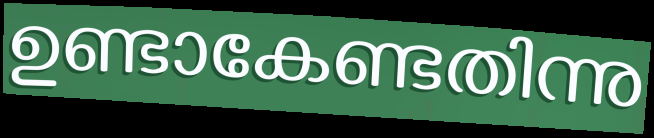
ഉണ്ടാകേണ്ടതിന്നു